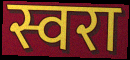
स्‍वरा